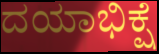
ದಯಾಭಿಕ್ಷೆ